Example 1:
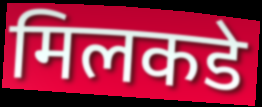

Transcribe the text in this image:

मिलकडे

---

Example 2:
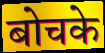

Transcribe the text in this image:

बोचके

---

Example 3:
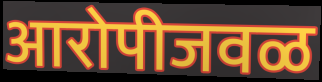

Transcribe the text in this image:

आरोपीजवळ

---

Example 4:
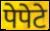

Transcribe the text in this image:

पेपेटे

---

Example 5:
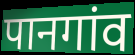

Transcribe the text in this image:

पानगांव